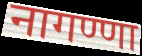
नागण्णा